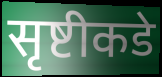
सृष्टीकडे